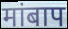
मांबाप